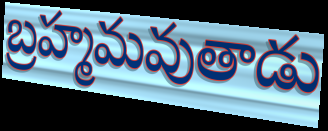
బ్రహ్మమవుతాడు